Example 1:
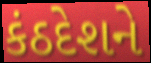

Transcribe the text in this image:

કંઠદેશને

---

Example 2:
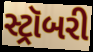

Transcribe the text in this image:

સ્ટ્રૉબરી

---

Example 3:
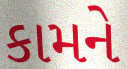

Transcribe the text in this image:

કામને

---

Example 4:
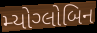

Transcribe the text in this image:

મ્યોગ્લોબિન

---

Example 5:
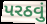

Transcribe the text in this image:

પરઠવું